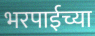
भरपाईच्या